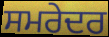
ਸਮਰੇਦਰ